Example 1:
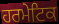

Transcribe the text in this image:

ਹਰਮੇਟਿਕ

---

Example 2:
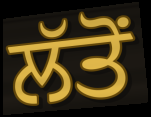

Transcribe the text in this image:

ਲੱਤੋਂ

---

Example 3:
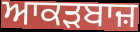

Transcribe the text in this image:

ਆਕੜਬਾਜ਼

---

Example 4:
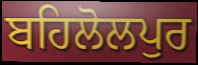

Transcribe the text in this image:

ਬਹਿਲੋਲਪੁਰ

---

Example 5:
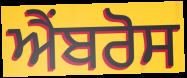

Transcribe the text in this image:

ਐਂਬਰੋਸ